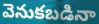
వెనుకబడినా